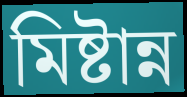
মিষ্টান্ন